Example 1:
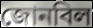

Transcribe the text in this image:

জোনবিল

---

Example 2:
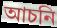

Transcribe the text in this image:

আচনি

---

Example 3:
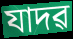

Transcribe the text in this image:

যাদৱ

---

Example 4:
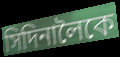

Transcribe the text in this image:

সিদিনালৈকে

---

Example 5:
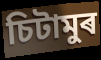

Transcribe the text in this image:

চিটামুৰ